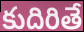
కుదిరితే